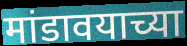
मांडावयाच्या